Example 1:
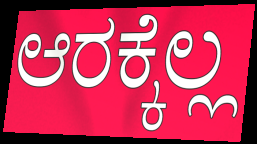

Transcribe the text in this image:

ಆರಕ್ಕೆಲ್ಲ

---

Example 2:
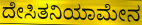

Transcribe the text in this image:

ದೇಸಿತನಿಯಾಮೇನ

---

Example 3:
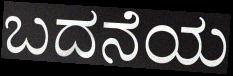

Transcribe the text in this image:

ಬದನೆಯ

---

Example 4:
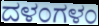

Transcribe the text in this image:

ದಳಂಗಳಂ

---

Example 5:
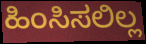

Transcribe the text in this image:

ಹಿಂಸಿಸಲಿಲ್ಲ